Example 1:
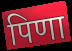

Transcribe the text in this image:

पिणा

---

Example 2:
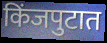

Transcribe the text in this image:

किंजपुटात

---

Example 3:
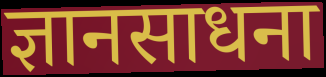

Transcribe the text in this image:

ज्ञानसाधना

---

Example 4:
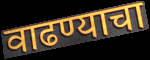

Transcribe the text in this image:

वाढण्याचा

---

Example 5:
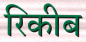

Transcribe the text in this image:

रिकीब